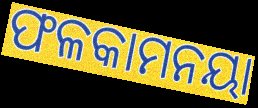
ଫଳକାମନୟା